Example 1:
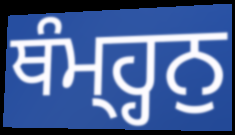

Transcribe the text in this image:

ਥੰਮ੍ਹ੍ਹਨੁ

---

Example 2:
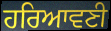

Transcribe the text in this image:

ਹਰਿਆਵਣੀ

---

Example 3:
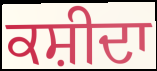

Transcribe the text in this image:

ਕਸ਼ੀਦਾ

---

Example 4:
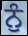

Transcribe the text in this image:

ਨੁੰ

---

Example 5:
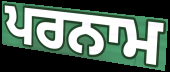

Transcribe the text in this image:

ਪਰਨਾਮ